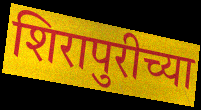
शिरापुरीच्या